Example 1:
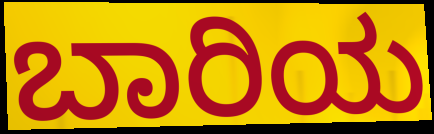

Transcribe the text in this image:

ಬಾರಿಯ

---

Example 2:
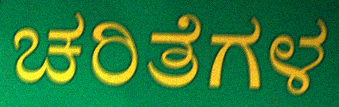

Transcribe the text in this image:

ಚರಿತೆಗಳ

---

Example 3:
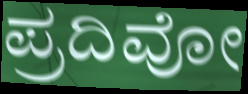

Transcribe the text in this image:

ಪ್ರದಿವೋ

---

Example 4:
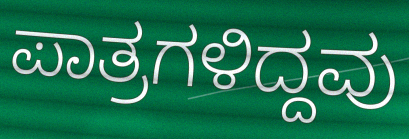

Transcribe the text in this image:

ಪಾತ್ರಗಳಿದ್ದವು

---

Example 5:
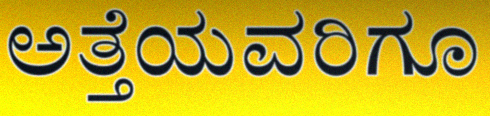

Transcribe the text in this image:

ಅತ್ತೆಯವರಿಗೂ